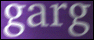
garg